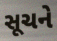
સૂચને